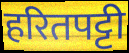
हरितपट्टी